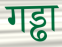
गड्ढा